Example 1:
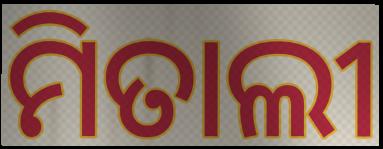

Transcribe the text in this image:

ମିତାଲୀ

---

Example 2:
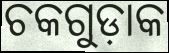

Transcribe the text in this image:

ଚକଗୁଡ଼ାକ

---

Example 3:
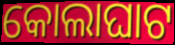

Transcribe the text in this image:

କୋଲାଘାଟ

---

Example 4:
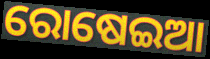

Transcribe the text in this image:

ରୋଷେଇଆ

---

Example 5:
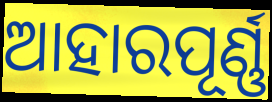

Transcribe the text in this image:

ଆହାରପୂର୍ଣ୍ଣ